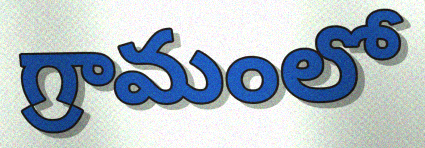
గ్రామంలో